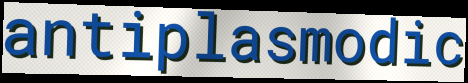
antiplasmodic